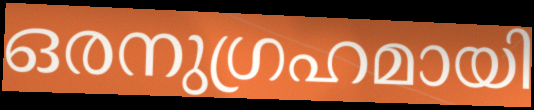
ഒരനുഗ്രഹമായി